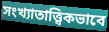
সংখ্যাতাত্ত্বিকভাবে